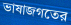
ভাষাজগতের